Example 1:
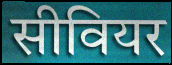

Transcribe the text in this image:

सीवियर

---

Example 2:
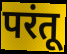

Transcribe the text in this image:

परंतू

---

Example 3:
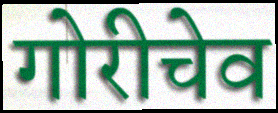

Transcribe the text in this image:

गोरीचेव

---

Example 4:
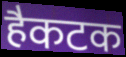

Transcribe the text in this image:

हैकटक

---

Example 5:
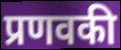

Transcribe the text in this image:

प्रणवकी